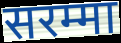
सरम्मा